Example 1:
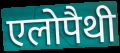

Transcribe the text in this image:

एलोपैथी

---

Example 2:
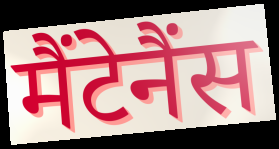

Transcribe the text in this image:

मैंटेनैंस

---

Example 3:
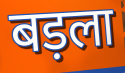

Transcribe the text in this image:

बड़ला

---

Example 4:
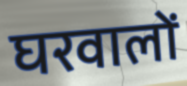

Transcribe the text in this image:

घरवालों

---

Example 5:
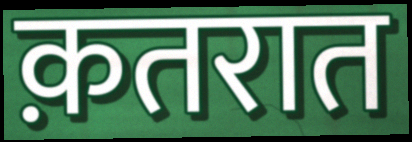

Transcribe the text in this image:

क़तरात